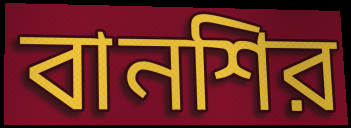
বানশির